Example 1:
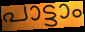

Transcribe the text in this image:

പാട്ടാം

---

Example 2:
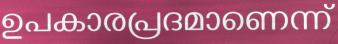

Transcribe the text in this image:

ഉപകാരപ്രദമാണെന്ന്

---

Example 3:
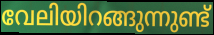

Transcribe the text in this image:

വേലിയിറങ്ങുന്നുണ്ട്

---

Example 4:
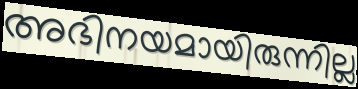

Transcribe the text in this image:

അഭിനയമായിരുന്നില്ല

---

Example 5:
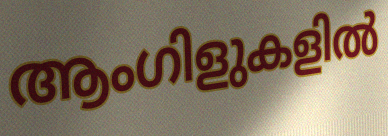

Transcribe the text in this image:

ആംഗിളുകളിൽ